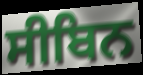
ਸੀਬਿਨ